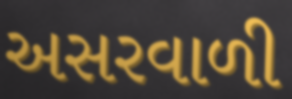
અસરવાળી